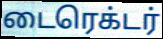
டைரெக்டர்